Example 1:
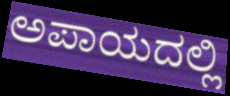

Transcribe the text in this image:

ಅಪಾಯದಲ್ಲಿ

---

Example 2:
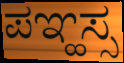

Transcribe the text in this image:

ಪಞ್ಹಸ್ಸ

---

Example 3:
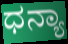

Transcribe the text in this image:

ಧನ್ಯಾ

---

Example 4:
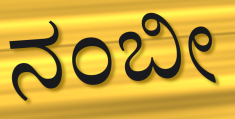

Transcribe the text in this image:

ನಂಬೀ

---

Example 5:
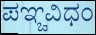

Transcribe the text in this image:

ಪಞ್ಚವಿಧಂ